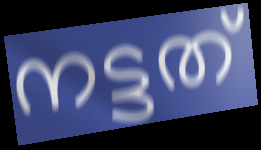
നട്ടത്